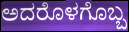
ಅದರೊಳಗೊಬ್ಬ